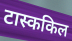
टास्ककिल